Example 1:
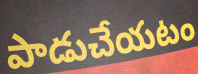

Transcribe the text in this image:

పాడుచేయటం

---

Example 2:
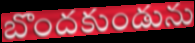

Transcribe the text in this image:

బొందకుండును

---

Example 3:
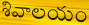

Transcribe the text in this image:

శివాలయం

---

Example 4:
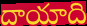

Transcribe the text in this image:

దాయాది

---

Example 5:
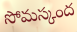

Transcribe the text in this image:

సోమస్కంద